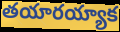
తయారయ్యాక